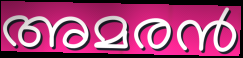
അമരൻ